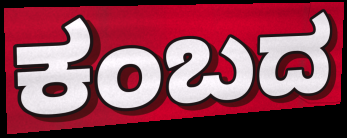
ಕಂಬದ